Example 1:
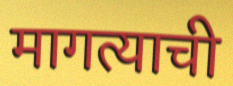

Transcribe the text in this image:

मागत्याची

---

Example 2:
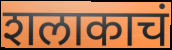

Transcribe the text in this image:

शलाकाचं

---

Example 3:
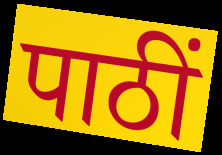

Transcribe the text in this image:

पाठीं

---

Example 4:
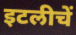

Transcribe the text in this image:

इटलीचें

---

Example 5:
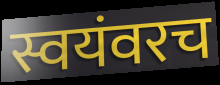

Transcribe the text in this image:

स्वयंवरच